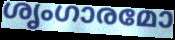
ശൃംഗാരമോ